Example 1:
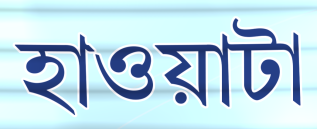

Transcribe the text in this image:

হাওয়াটা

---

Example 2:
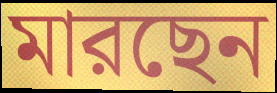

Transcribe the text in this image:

মারছেন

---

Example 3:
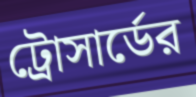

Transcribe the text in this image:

ট্রোসার্ডের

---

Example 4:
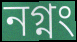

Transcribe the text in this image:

নগ্নং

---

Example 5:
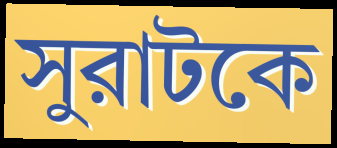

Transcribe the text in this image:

সুরাটকে